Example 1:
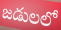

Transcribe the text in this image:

జడులలో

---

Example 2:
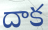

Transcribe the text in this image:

దాక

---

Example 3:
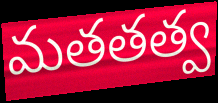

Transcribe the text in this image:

మతతత్వ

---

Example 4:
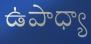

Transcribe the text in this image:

ఉపాధ్యా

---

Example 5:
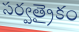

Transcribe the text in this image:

సర్వత్రైకం